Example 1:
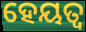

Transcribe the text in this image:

ହେୟତ୍ୱ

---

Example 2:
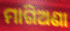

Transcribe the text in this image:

ମାଗିଅଣା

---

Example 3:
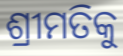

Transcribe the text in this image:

ଶ୍ରୀମତିକୁ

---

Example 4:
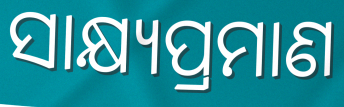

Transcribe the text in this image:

ସାକ୍ଷ୍ୟପ୍ରମାଣ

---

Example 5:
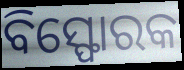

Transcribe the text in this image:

ବିସ୍ଫୋରକ